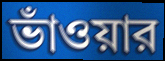
ভাঁওয়ার